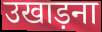
उखाड़ना